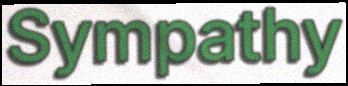
Sympathy